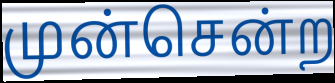
முன்சென்ற